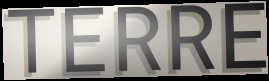
TERRE